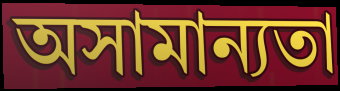
অসামান্যতা